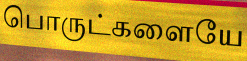
பொருட்களையே